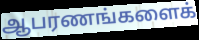
ஆபரணங்களைக்